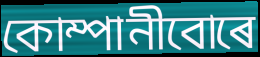
কোম্পানীবোৰে